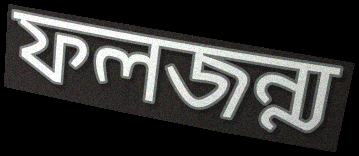
ফলজন্ম